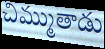
చిమ్ముతాడు